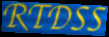
RTDSS